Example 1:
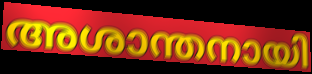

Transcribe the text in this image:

അശാന്തനായി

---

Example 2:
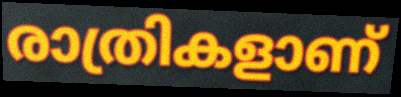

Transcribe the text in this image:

രാത്രികളാണ്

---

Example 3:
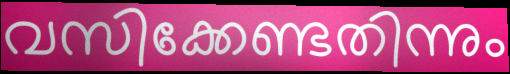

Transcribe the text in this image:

വസിക്കേണ്ടതിന്നും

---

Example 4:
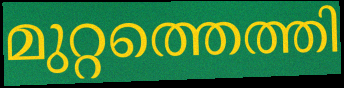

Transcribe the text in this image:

മുറ്റത്തെത്തി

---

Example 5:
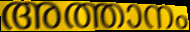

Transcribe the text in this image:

അത്താനം